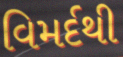
વિમર્દથી